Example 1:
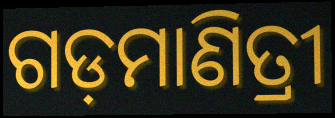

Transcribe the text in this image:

ଗଡ଼ମାଣିତ୍ରୀ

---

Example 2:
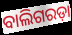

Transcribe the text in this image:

ବାଲିଗରଡ଼ା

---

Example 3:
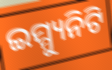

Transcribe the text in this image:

ଇମ୍ମ୍ୟୁନିଟି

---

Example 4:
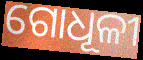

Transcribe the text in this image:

ଗୋଧୂଳୀ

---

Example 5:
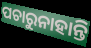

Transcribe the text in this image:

ପଚାରୁନାହାନ୍ତି